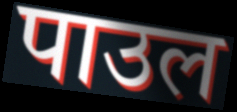
पाउल